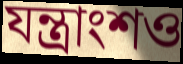
যন্ত্রাংশও